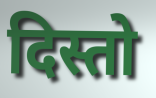
दिस्तो